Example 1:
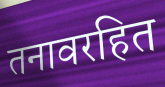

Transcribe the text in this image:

तनावरहित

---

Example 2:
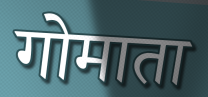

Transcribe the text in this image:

गोमाता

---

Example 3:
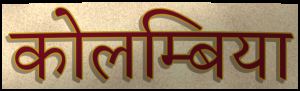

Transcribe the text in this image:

कोलम्बिया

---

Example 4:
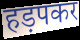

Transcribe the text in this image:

हड़पकर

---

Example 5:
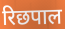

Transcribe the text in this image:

रिछपाल